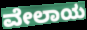
ವೇಲಾಯ